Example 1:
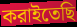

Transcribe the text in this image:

করাইতেছি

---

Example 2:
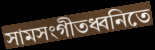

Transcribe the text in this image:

সামসংগীতধ্বনিতে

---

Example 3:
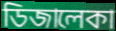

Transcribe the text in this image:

ডিজালেকা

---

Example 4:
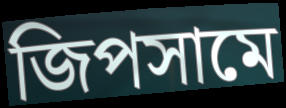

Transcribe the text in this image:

জিপসামে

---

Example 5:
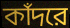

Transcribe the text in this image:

কাঁদরে